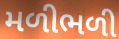
મળીભળી